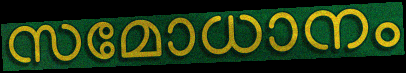
സമോധാനം